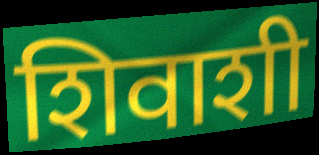
शिवाशी